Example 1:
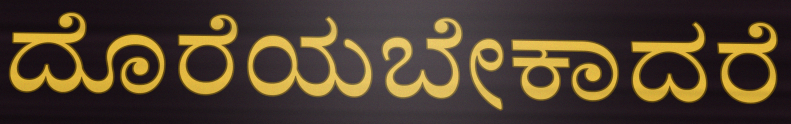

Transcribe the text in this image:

ದೊರೆಯಬೇಕಾದರೆ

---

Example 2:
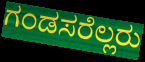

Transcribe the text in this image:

ಗಂಡಸರೆಲ್ಲರು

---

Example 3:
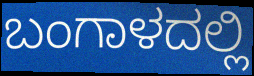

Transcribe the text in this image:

ಬಂಗಾಳದಲ್ಲಿ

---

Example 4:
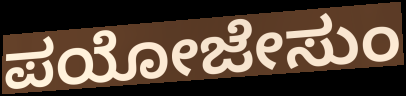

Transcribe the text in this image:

ಪಯೋಜೇಸುಂ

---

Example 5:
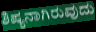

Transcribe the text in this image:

ಶಿಷ್ಯನಾಗಿರುವುದು